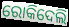
ରୋକିଦେଲି